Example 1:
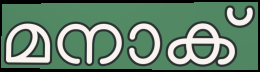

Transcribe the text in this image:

മനാക്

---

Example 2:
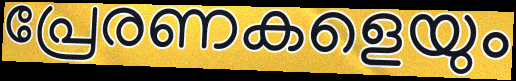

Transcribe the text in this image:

പ്രേരണകളെയും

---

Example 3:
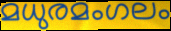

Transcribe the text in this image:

മധുരമംഗലം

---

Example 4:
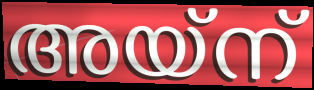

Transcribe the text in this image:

അയ്ന്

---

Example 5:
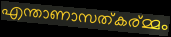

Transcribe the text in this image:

എന്താണാസത്കര്മ്മം